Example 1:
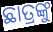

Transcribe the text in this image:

ଛାତ୍ରଙ୍କୁ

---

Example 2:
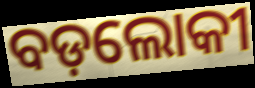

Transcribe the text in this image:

ବଡ଼ଲୋକୀ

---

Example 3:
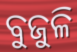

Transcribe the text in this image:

ବୁଜୁଳି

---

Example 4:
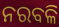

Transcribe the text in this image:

ନରବଳି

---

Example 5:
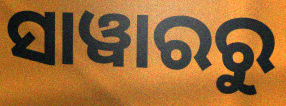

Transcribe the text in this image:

ସାୱାରରୁ